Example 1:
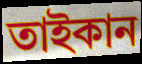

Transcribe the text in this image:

তাইকান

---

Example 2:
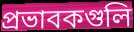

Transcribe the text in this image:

প্রভাবকগুলি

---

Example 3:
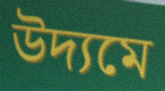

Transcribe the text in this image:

উদ্যমে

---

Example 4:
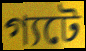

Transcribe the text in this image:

গ্যটে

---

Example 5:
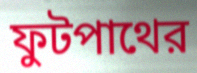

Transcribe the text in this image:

ফুটপাথের